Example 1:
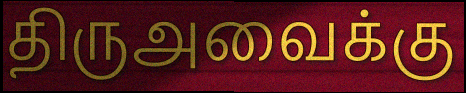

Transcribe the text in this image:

திருஅவைக்கு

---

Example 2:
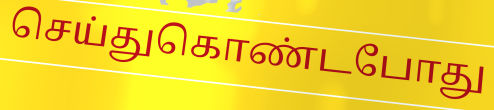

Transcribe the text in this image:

செய்துகொண்டபோது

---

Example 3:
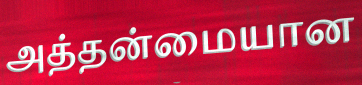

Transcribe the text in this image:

அத்தன்மையான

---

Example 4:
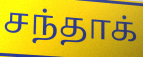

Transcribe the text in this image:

சந்தாக்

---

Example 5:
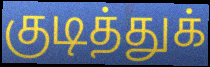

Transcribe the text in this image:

குடித்துக்